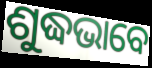
ଶୁଦ୍ଧଭାବେ